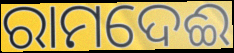
ରାମଦେଈ